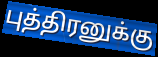
புத்திரனுக்கு